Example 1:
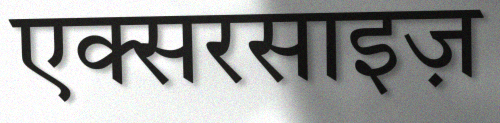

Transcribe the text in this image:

एक्सरसाइज़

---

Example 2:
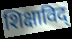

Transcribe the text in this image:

शिक्षाविद्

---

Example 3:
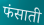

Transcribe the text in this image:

फंसाती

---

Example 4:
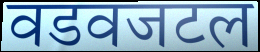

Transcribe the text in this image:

वडवजटल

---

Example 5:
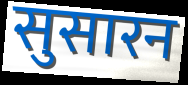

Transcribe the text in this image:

सुसारन